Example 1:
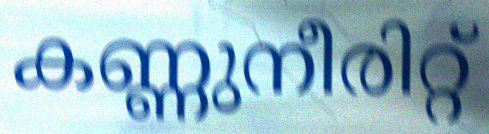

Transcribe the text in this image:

കണ്ണുനീരിറ്റ്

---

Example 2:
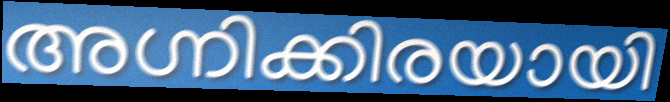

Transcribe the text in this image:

അഗ്നിക്കിരയായി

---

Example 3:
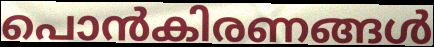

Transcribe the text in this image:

പൊൻകിരണങ്ങൾ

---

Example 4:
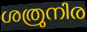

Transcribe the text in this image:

ശത്രുനിര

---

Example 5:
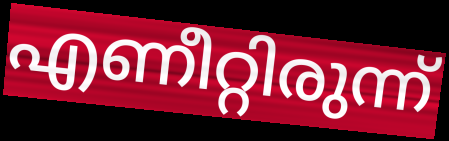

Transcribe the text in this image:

എണീറ്റിരുന്ന്